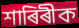
শাৰিৰীক